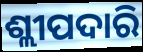
ଶ୍ଲୀପଦାରି